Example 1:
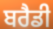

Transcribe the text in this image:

ਬਰੈਡੀ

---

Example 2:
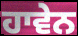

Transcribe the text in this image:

ਹਾਵੇਨ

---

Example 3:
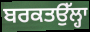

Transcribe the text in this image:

ਬਰਕਤਉੱਲ੍ਹਾ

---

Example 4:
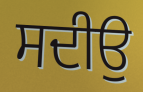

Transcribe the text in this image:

ਸਦੀਉ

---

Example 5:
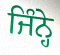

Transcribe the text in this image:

ਜਿੰਨ੍ਹੇ